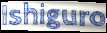
Ishiguro